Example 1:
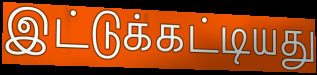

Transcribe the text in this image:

இட்டுக்கட்டியது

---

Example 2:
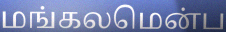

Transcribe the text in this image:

மங்கலமென்ப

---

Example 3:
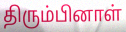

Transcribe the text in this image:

திரும்பினாள்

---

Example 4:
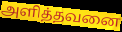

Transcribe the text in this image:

அளித்தவனை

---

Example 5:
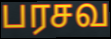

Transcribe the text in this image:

பரசவ